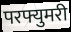
परफ्युमरी